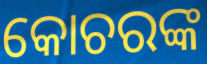
କୋଚରଙ୍କ